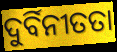
ଦୁର୍ବିନୀତତା